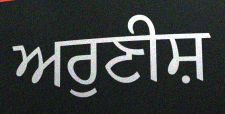
ਅਰੁਣੀਸ਼